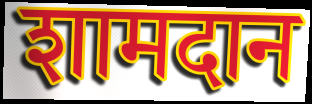
शामदान